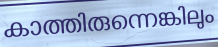
കാത്തിരുന്നെങ്കിലും